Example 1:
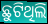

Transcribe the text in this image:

ଛୁଟିଥିଲି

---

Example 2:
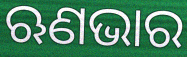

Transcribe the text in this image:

ଋଣଭାର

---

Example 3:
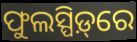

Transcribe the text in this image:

ଫୁଲସ୍ପିଡ଼୍‌ରେ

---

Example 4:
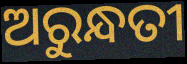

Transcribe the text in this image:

ଅରୁନ୍ଧତୀ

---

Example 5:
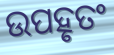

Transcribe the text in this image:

ଉପହୃତଂ